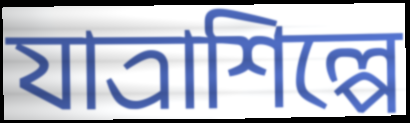
যাত্রাশিল্পে